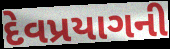
દેવપ્રયાગની